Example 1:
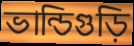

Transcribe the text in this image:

ভান্ডিগুড়ি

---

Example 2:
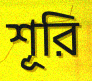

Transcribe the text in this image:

শূরি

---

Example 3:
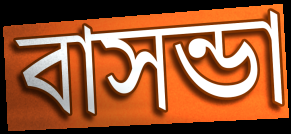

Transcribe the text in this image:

বাসন্ডা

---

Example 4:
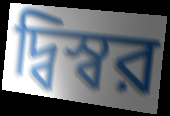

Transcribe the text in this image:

দ্বিস্বর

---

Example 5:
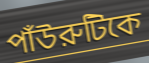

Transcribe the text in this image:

পাঁউরুটিকে